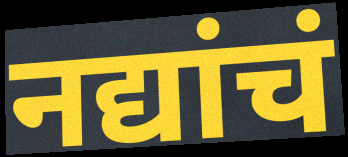
नद्यांचं